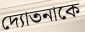
দ্যোতনাকে